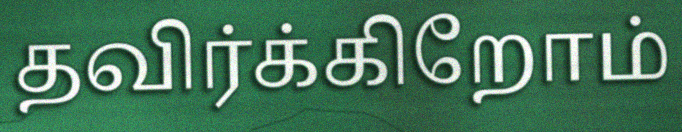
தவிர்க்கிறோம்